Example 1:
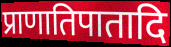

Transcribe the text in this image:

प्राणातिपातादि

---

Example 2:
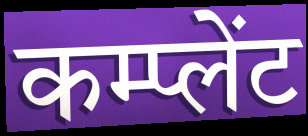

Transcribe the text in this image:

कम्प्लेंट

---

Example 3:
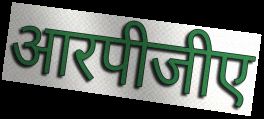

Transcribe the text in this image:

आरपीजीए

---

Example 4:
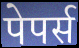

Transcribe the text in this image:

पेपर्स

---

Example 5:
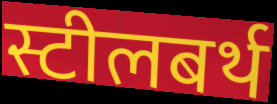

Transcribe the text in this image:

स्टीलबर्थ